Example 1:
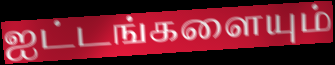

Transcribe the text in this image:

ஐட்டங்களையும்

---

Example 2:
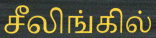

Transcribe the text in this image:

சீலிங்கில்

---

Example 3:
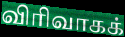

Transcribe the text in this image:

விரிவாகக்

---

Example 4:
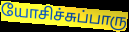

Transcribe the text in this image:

யோசிச்சுப்பாரு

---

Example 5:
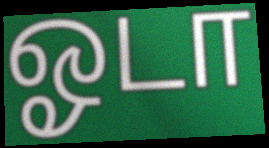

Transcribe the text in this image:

ஓடா